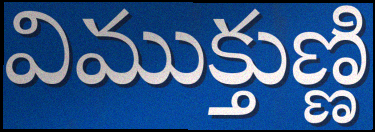
విముక్తుణ్ణి